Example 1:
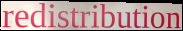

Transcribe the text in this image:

redistribution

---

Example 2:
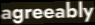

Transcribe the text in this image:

agreeably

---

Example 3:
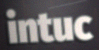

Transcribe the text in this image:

intuc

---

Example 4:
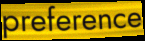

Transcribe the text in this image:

preference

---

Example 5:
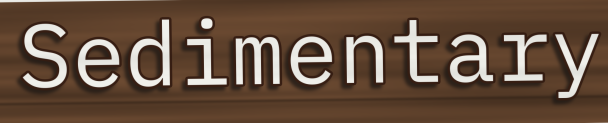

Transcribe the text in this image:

Sedimentary